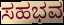
ಸಹಭವ